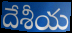
దేశీయ